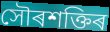
সৌৰশক্তিৰ